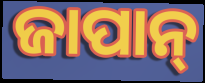
ଜାପାନ୍